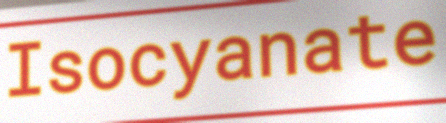
Isocyanate